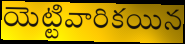
యెట్టివారికయిన